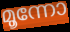
മൂന്നോ